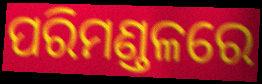
ପରିମଣ୍ଡଳରେ